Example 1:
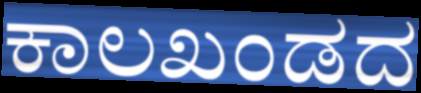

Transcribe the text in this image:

ಕಾಲಖಂಡದ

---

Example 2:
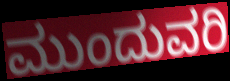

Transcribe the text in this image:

ಮುಂದುವರಿ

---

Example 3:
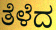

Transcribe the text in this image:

ತೆಳೆದ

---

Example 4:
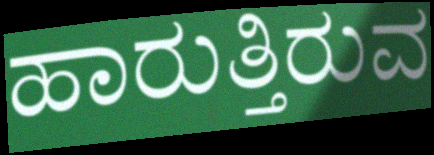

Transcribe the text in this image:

ಹಾರುತ್ತಿರುವ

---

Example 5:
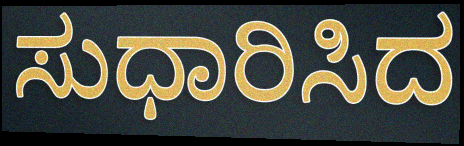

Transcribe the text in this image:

ಸುಧಾರಿಸಿದ